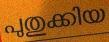
പുതുക്കിയ